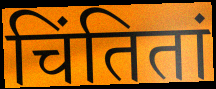
चिंतितां